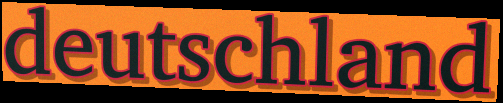
deutschland